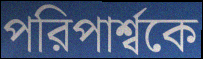
পরিপার্শ্বকে